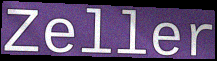
Zeller